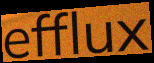
efflux